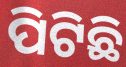
ପିଟିଛି